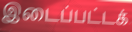
இடைப்பட்டக்